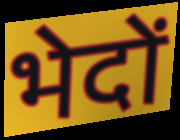
भेदों